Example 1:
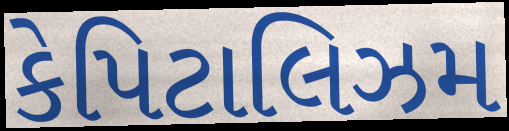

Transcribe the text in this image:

કેપિટાલિઝમ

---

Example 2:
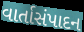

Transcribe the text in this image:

વાર્તાસંપાદન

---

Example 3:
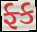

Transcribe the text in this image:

ફ્ક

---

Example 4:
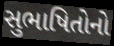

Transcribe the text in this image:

સુભાષિતોનો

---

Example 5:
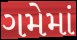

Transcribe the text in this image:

ગમેમાં